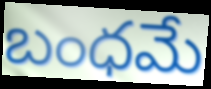
బంధమే